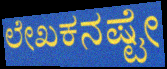
ಲೇಖಕನಷ್ಟೇ